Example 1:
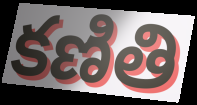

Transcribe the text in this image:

కణితి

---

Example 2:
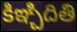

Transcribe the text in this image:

కిఞ్చిదితి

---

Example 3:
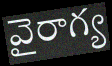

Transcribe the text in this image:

వైరాగ్య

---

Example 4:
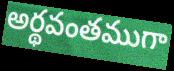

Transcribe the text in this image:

అర్థవంతముగా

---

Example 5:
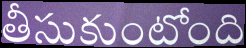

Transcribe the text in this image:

తీసుకుంటోంది